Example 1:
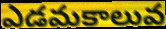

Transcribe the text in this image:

ఎడమకాలువ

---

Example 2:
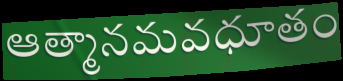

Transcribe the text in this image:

ఆత్మానమవధూతం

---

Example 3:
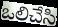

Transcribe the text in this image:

ఒలిచేసి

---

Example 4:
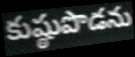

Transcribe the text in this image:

కుష్ఠుపొడను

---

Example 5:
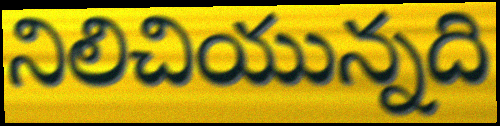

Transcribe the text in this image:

నిలిచియున్నది